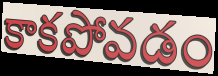
కాకపోవడం